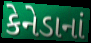
કેનેડાનાં